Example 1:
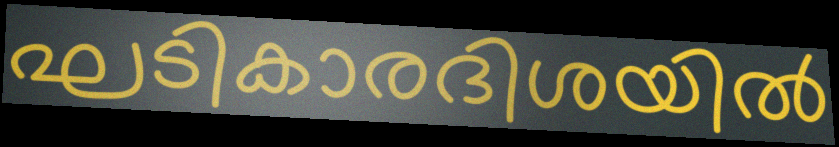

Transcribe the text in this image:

ഘടികാരദിശയിൽ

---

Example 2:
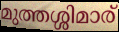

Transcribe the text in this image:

മുത്തശ്ശിമാര്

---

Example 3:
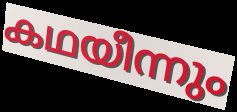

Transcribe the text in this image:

കഥയീന്നും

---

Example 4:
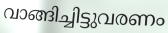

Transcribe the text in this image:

വാങ്ങിച്ചിട്ടുവരണം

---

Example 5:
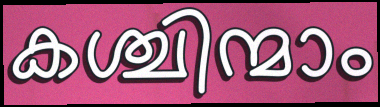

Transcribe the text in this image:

കശ്ചിന്മാം